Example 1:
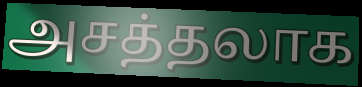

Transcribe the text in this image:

அசத்தலாக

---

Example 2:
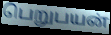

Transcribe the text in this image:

பெறுபயன்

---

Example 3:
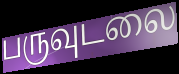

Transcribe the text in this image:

பருவுடலை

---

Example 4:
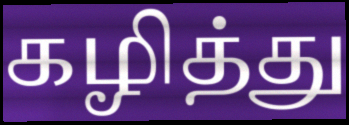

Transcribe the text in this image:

கழித்து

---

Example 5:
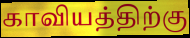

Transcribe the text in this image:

காவியத்திற்கு